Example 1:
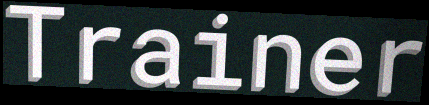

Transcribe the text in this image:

Trainer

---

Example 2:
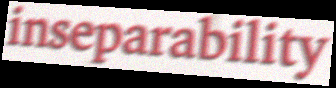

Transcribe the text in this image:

inseparability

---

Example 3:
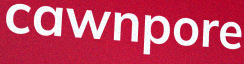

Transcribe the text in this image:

cawnpore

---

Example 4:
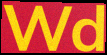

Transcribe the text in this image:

Wd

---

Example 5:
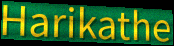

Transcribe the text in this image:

Harikathe